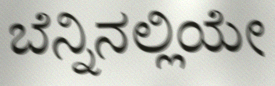
ಬೆನ್ನಿನಲ್ಲಿಯೇ